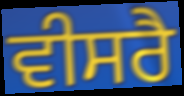
ਵੀਸਰੈ